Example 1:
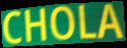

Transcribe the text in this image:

CHOLA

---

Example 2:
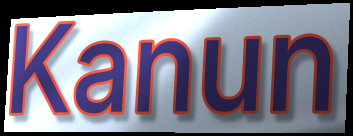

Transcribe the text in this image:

Kanun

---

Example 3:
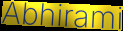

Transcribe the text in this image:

Abhirami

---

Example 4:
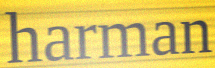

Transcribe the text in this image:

harman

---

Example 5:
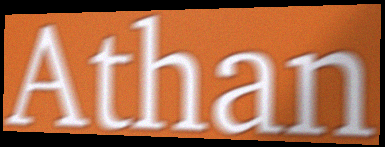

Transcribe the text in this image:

Athan